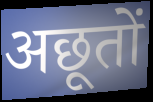
अछूतों